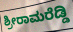
ಶ್ರೀರಾಮರೆಡ್ಡಿ